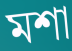
মশা